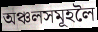
অঞ্চলসমূহলৈ